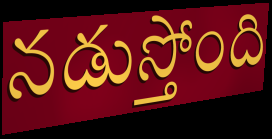
నడుస్తోంది